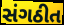
સંગઠીત